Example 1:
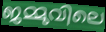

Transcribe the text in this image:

ജമ്മുവിലെ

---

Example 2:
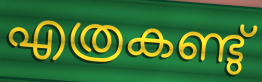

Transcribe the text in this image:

എത്രകണ്ടു്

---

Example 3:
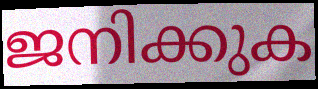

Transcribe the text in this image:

ജനിക്കുക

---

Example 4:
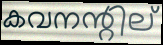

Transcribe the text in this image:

കവനന്റില്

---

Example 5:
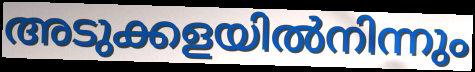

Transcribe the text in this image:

അടുക്കളയിൽനിന്നും